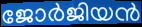
ജോർജിയൻ